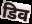
डिव